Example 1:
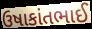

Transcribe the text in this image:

ઉષાકાંતભાઈ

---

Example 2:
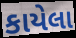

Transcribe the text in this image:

કાયેલા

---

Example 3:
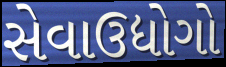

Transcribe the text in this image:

સેવાઉદ્યોગો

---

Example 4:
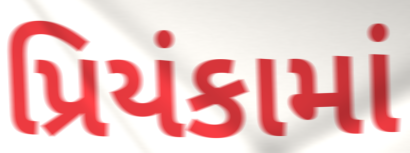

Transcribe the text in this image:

પ્રિયંકામાં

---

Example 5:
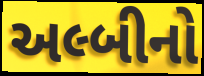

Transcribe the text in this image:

અલ્બીનો